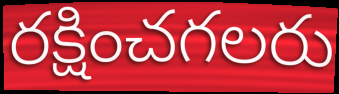
రక్షించగలరు